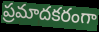
ప్రమాదకరంగా